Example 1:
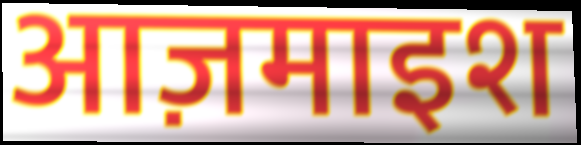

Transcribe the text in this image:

आज़माइश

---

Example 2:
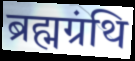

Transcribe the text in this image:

ब्रह्मग्रंथि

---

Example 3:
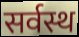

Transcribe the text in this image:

सर्वस्थ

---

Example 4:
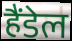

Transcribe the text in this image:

हैंडेल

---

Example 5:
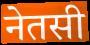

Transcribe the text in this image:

नेतसी